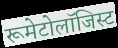
रूमेटोलॉजिस्ट